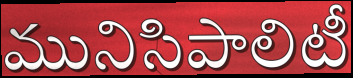
మునిసిపాలిటీ